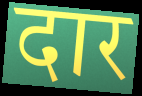
दार